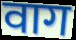
वाग